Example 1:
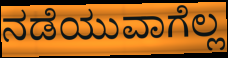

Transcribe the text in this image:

ನಡೆಯುವಾಗೆಲ್ಲ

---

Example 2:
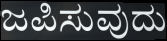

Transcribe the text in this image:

ಜಪಿಸುವುದು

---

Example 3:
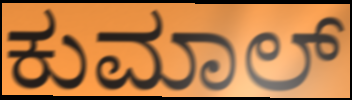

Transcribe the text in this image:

ಕುಮಾಲ್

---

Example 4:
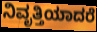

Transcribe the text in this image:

ನಿವೃತ್ತಿಯಾದರೆ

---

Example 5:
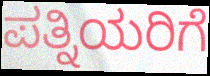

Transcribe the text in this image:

ಪತ್ನಿಯರಿಗೆ